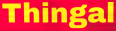
Thingal